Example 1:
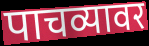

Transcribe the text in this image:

पाचव्यावर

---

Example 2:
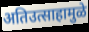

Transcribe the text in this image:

अतिउत्साहामुळे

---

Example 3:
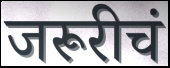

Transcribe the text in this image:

जरूरीचं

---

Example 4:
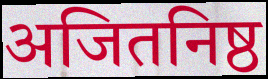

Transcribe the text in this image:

अजितनिष्ठ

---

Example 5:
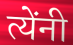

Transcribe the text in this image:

त्येंनी